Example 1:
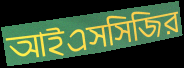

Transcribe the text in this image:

আইএসসিজির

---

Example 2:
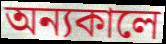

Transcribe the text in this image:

অন্যকালে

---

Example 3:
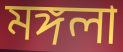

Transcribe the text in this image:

মঙ্গলা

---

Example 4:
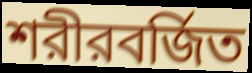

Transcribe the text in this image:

শরীরবর্জিত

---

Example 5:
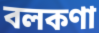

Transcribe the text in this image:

বলকণা